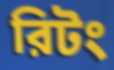
রিটং